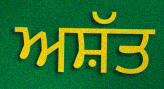
ਅਸ਼ੱਤ